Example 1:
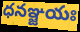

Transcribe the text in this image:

ధనఞ్జయః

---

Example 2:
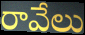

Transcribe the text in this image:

రావేలు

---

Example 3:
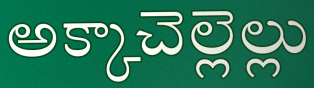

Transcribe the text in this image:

అక్కాచెల్లెల్లు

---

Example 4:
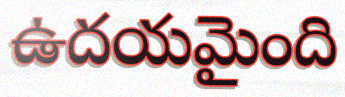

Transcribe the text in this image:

ఉదయమైంది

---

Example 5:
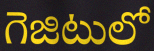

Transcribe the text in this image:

గెజిటులో